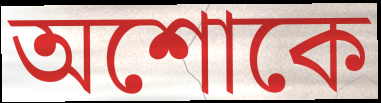
অশোকে